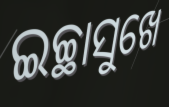
ଇଚ୍ଛାସୁଖେ